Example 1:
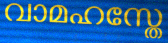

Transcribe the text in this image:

വാമഹസ്തേ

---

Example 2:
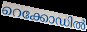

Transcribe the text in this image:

റെക്കോഡിൽ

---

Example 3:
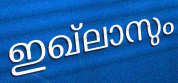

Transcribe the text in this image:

ഇഖ്‌ലാസും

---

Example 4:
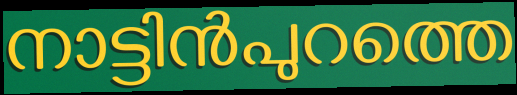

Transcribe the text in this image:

നാട്ടിൻപുറത്തെ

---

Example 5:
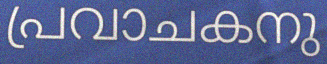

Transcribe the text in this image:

പ്രവാചകനു